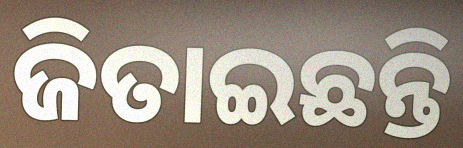
ଜିତାଇଛନ୍ତି